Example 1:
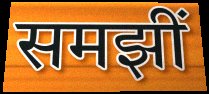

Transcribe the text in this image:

समझीं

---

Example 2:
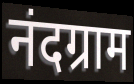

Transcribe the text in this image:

नंदग्राम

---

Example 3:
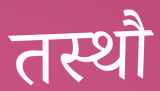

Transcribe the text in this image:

तस्थौ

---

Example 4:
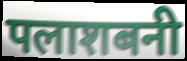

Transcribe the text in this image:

पलाशबनी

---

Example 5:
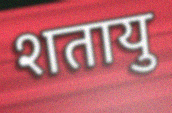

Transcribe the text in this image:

शतायु